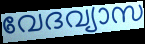
വേദവ്യാസ